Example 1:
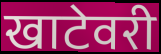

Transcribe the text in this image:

खाटेवरी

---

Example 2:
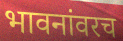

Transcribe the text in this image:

भावनांवरच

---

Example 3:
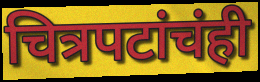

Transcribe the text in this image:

चित्रपटांचंही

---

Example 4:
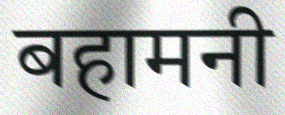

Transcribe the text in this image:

बहामनी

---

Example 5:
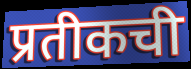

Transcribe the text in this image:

प्रतीकची